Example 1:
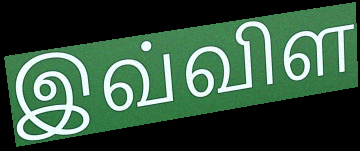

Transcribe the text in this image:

இவ்விள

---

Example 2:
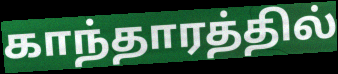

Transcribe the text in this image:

காந்தாரத்தில்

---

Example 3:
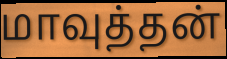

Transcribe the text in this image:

மாவுத்தன்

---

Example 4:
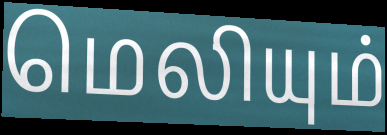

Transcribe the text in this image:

மெலியும்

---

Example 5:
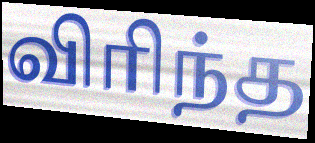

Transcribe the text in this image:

விரிந்த